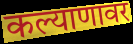
कल्याणावर